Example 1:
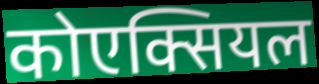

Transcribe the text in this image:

कोएक्सियल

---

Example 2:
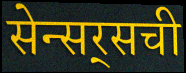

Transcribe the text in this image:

सेन्सर्सची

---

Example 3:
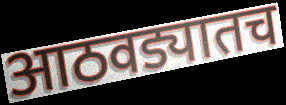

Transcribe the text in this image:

आठवड्यातच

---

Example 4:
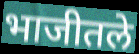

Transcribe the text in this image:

भाजीतले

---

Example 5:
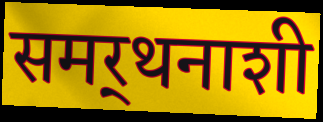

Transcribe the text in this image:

समर्थनाशी